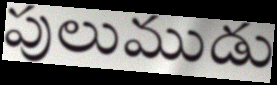
పులుముడు